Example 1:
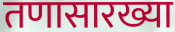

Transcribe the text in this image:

तणासारख्या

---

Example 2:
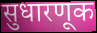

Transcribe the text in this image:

सुधारणूक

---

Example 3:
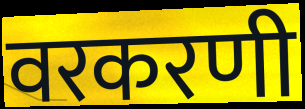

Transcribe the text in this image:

वरकरणी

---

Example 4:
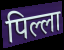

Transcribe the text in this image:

पिल्ला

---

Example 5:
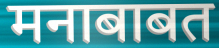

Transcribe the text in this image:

मनाबाबत